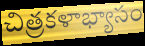
చిత్రకళాభ్యాసం